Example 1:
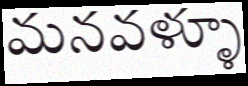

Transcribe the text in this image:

మనవళ్ళూ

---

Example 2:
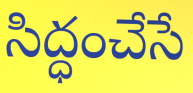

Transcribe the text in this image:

సిద్ధంచేసే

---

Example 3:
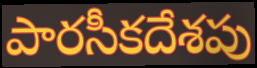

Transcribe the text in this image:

పారసీకదేశపు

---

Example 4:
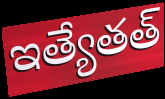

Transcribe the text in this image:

ఇత్యేతత్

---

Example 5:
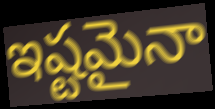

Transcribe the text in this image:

ఇష్టమైనా